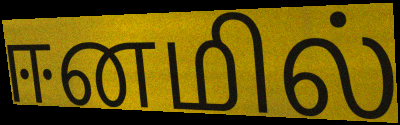
ஈனமில்